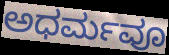
ಅಧರ್ಮವೂ